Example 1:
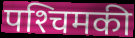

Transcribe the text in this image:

पश्चिमकी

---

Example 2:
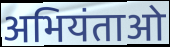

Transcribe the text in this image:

अभियंताओ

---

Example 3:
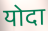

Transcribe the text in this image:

योदा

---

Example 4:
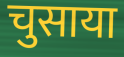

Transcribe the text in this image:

चुसाया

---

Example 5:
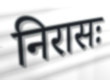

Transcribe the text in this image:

निरासः